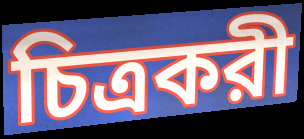
চিত্রকরী